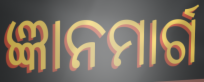
ଜ୍ଞାନମାର୍ଗ